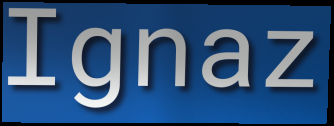
Ignaz